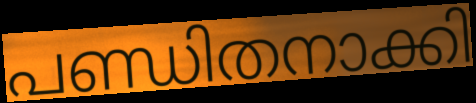
പണ്ഡിതനാക്കി